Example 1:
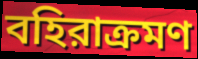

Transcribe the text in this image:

বহিরাক্রমণ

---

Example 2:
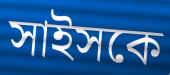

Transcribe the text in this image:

সাইসকে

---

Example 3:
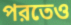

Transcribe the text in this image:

পরতেও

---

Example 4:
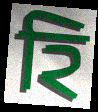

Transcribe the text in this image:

হি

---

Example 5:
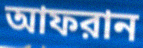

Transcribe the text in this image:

আফরান